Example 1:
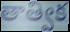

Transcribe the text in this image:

తాత్విక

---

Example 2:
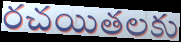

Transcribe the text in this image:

రచయితలకు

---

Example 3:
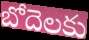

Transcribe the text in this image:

బోదెలకు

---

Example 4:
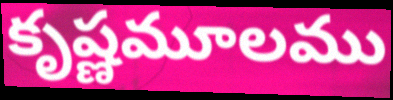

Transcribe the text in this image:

కృష్ణమూలము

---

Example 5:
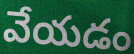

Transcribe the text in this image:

వేయడం